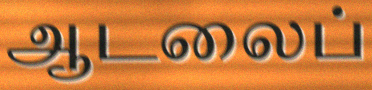
ஆடலைப்